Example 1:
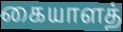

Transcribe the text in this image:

கையாளத்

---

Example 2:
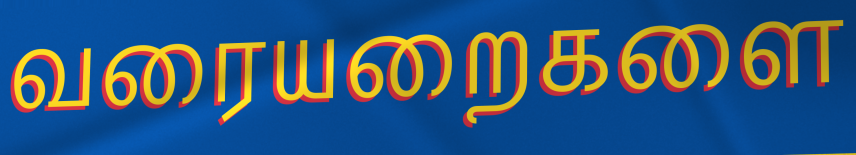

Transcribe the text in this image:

வரையறைகளை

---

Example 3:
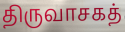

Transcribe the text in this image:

திருவாசகத்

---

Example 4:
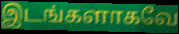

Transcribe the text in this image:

இடங்களாகவே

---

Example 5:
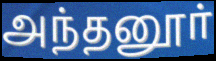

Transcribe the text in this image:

அந்தனூர்